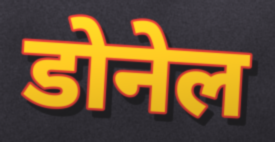
डोनेल